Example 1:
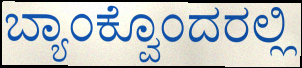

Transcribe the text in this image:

ಬ್ಯಾಂಕ್ವೊಂದರಲ್ಲಿ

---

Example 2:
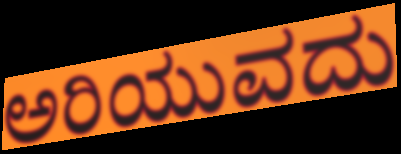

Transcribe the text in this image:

ಅರಿಯುವದು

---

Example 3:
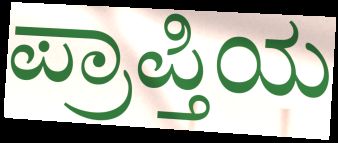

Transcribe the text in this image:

ಪ್ರಾಪ್ತಿಯ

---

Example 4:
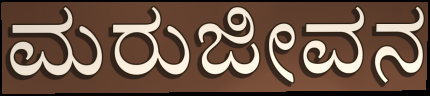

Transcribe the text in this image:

ಮರುಜೀವನ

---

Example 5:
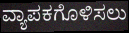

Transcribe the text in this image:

ವ್ಯಾಪಕಗೊಳಿಸಲು